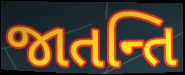
જાતન્તિ